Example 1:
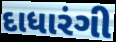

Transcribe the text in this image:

દાધારંગી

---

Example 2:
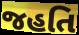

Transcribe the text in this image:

જહતિ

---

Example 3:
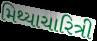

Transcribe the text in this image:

મિથ્યાચારિત્રી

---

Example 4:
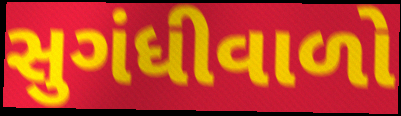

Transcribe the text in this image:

સુગંધીવાળો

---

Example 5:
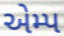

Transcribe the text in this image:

એમ્પ